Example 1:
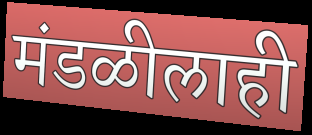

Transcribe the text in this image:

मंडळीलाही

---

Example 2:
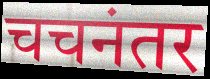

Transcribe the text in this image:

चचनंतर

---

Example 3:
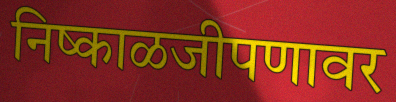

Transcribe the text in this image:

निष्काळजीपणावर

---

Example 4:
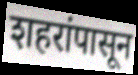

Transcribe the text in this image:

शहरांपासून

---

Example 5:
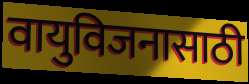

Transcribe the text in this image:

वायुविजनासाठी